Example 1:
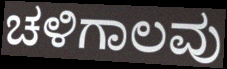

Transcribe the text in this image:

ಚಳಿಗಾಲವು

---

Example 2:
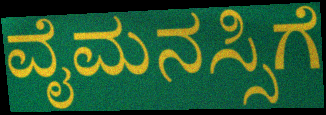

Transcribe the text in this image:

ವೈಮನಸ್ಸಿಗೆ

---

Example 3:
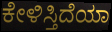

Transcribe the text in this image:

ಕೇಳಿಸ್ತಿದೆಯಾ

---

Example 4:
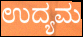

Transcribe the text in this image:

ಉದ್ಯಮ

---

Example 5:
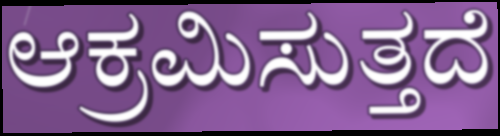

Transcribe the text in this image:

ಆಕ್ರಮಿಸುತ್ತದೆ